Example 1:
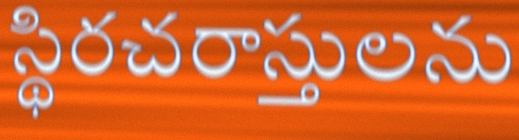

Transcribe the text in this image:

స్థిరచరాస్తులను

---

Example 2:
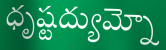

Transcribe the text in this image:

ధృష్టద్యుమ్నో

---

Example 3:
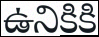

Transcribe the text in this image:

ఉనికికి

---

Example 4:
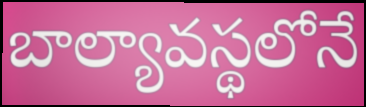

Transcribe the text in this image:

బాల్యావస్థలోనే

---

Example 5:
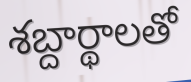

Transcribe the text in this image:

శబ్దార్థాలతో